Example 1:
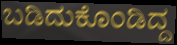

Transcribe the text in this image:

ಬಡಿದುಕೊಂಡಿದ್ದ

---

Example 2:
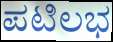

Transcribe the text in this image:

ಪಟಿಲಭ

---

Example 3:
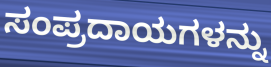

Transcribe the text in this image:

ಸಂಪ್ರದಾಯಗಳನ್ನು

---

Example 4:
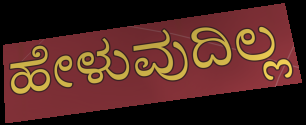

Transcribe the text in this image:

ಹೇಳುವುದಿಲ್ಲ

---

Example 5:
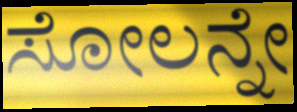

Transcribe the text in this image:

ಸೋಲನ್ನೇ